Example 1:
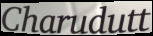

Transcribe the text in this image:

Charudutt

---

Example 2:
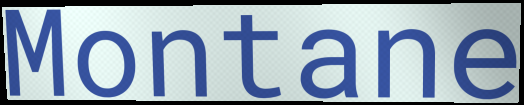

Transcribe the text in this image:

Montane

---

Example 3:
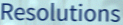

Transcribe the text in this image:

Resolutions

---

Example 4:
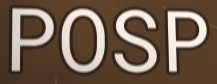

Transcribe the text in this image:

POSP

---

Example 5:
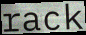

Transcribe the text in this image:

rack